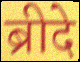
ब्रीदे